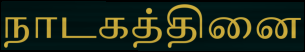
நாடகத்தினை